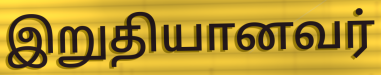
இறுதியானவர்